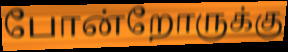
போன்றோருக்கு